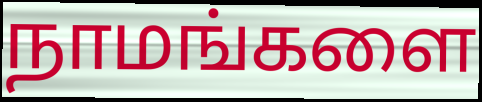
நாமங்களை